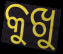
କୁଖୁ